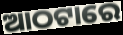
ଆଠଟାରେ